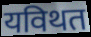
यविथत